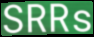
SRRs